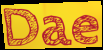
Dae